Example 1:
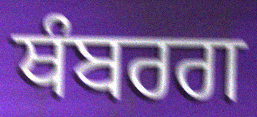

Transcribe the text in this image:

ਥੰਬਰਗ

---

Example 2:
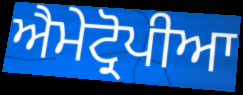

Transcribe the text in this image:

ਐਮੇਟ੍ਰੋਪੀਆ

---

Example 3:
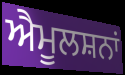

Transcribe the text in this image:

ਐਮੂਲਸ਼ਨਾਂ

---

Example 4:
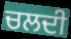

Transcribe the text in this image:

ਚਲਦੀ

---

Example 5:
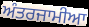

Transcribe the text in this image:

ਅੰਤਰਜਾਮੀਆ